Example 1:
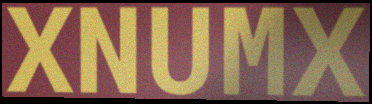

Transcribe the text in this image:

XNUMX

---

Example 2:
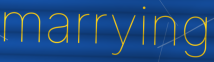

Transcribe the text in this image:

marrying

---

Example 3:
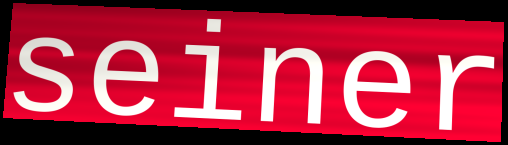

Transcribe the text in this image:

seiner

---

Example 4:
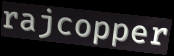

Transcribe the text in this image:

rajcopper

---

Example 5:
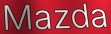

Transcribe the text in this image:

Mazda